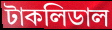
টাকলিডাল